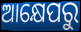
ଆକ୍ଷେପରୁ